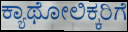
ಕ್ಯಾಥೋಲಿಕ್ಕರಿಗೆ